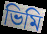
ভিমি